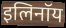
इलिनॉय